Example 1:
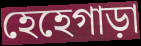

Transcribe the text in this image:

হেহেগাড়া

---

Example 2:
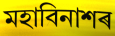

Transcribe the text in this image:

মহাবিনাশৰ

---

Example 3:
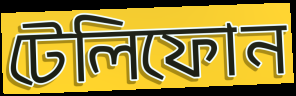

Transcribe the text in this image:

টেলিফোন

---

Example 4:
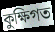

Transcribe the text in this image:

কুক্ষিগত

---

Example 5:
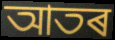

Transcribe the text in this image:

আতৰ